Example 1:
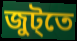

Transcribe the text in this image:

জুট্তে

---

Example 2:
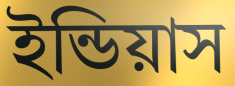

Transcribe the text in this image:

ইন্ডিয়াস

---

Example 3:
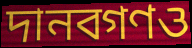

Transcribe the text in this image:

দানবগণও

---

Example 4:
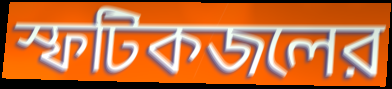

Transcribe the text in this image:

স্ফটিকজলের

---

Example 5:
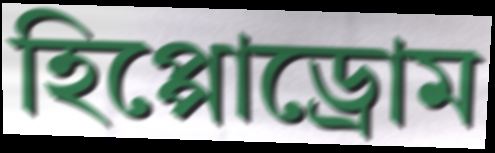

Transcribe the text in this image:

হিপ্পোড্রোম